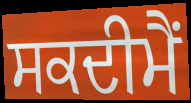
ਸਕਦੀਮੈਂ